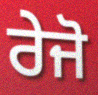
ਰੇਜੋ